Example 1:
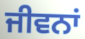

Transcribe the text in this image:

ਜੀਵਨਾਂ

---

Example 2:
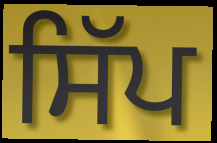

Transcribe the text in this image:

ਸਿੱਪ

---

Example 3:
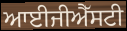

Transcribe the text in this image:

ਆਈਜੀਐੱਸਟੀ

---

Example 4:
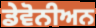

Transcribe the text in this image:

ਡੇਵੋਨੀਅਨ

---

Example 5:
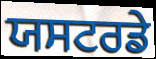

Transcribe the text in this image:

ਯਸਟਰਡੇ